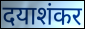
दयाशंकर